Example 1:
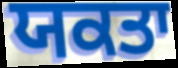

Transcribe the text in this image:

ਯਕਤਾ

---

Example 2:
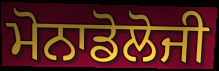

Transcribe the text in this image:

ਮੋਨਾਡੋਲੋਜੀ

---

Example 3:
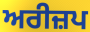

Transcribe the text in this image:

ਅਰੀਜ਼ਪ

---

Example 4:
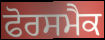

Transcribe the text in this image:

ਫੋਰਸਮੈਕ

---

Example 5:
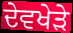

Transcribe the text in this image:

ਦੇਵਖੇੜੇ